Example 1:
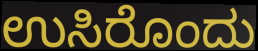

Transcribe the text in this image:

ಉಸಿರೊಂದು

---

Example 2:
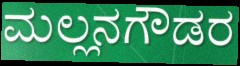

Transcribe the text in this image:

ಮಲ್ಲನಗೌಡರ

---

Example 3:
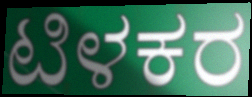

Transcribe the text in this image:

ಟಿಳಕರ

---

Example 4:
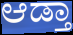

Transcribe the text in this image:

ಆಡ್ತಾ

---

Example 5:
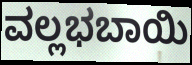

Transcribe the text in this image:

ವಲ್ಲಭಬಾಯಿ